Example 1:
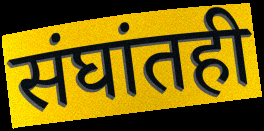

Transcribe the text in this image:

संघांतही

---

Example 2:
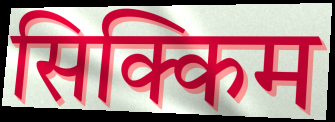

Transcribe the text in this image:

सिक्किम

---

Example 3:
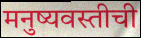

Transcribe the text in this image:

मनुष्यवस्तीची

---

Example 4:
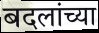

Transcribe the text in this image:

बदलांच्या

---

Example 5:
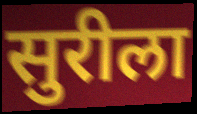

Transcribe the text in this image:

सुरीला